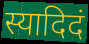
स्यादिदं